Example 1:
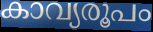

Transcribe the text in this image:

കാവ്യരൂപം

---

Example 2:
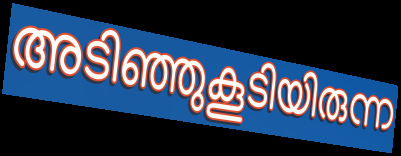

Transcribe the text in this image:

അടിഞ്ഞുകൂടിയിരുന്ന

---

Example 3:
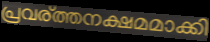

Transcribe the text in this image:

പ്രവര്ത്തനക്ഷമമാക്കി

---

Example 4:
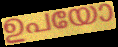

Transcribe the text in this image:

ഉപയോ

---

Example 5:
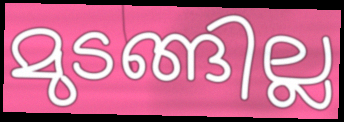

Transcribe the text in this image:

മുടങ്ങില്ല